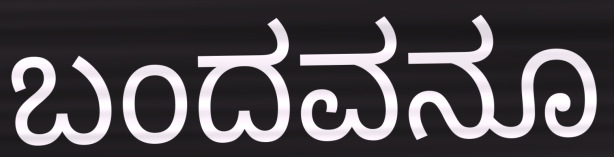
ಬಂದವನೂ